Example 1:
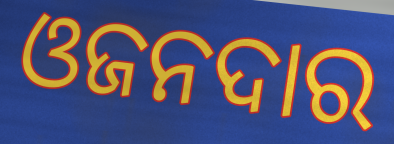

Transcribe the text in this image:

ଓଜନଦାର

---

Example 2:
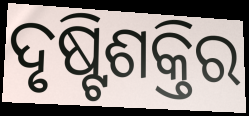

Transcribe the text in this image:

ଦୃଷ୍ଟିଶକ୍ତିର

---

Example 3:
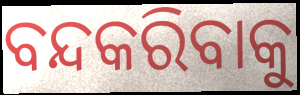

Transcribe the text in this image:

ବନ୍ଦକରିବାକୁ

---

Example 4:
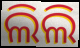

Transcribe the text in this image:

ଲିଲି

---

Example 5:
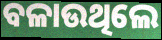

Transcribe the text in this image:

ବଳାଉଥିଲେ